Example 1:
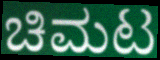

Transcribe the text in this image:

ಚಿಮಟ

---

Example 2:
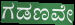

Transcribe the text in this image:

ಗಡಣವೇ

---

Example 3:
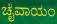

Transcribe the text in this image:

ಚೈವಾಯಂ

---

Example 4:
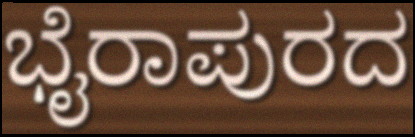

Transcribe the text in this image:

ಭೈರಾಪುರದ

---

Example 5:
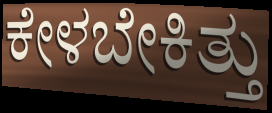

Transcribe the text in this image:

ಕೇಳಬೇಕಿತ್ತು